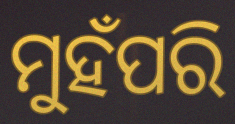
ମୁହଁପରି